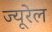
ज्यूरेल